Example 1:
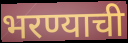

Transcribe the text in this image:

भरण्याची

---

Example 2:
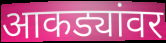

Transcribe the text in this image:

आकड्यांवर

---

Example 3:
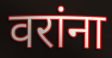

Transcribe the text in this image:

वरांना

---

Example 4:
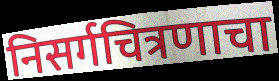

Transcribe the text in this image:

निसर्गचित्रणाचा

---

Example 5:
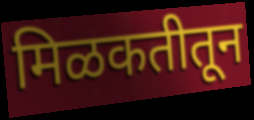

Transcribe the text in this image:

मिळकतीतून